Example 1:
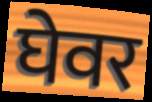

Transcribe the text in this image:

घेवर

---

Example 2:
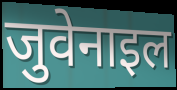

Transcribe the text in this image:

जुवेनाइल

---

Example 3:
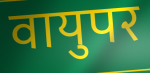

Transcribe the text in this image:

वायुपर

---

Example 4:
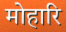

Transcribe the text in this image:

मोहारि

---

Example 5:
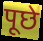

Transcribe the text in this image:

पूछे